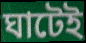
ঘাটেই